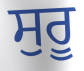
ਸੁਰੂ